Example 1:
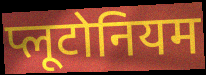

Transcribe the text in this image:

प्लूटोनियम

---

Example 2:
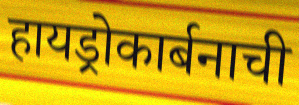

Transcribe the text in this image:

हायड्रोकार्बनाची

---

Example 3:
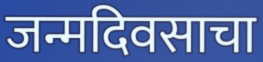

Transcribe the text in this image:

जन्मदिवसाचा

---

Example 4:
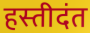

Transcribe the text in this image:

हस्तीदंत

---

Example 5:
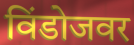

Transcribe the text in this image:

विंडोजवर